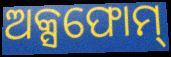
ଅକ୍ସଫୋମ୍